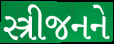
સ્ત્રીજનને